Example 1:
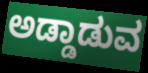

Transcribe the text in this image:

ಅಡ್ಡಾಡುವ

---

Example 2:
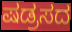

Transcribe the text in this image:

ಷಡ್ರಸದ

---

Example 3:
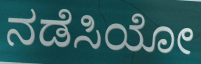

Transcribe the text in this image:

ನಡೆಸಿಯೋ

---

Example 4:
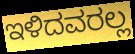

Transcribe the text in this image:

ಇಳಿದವರಲ್ಲ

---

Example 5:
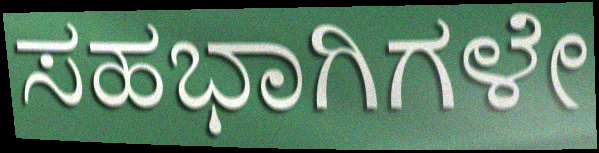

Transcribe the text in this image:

ಸಹಭಾಗಿಗಳೇ